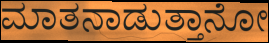
ಮಾತನಾಡುತ್ತಾನೋ